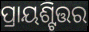
ପ୍ରାୟଶ୍ଟିତ୍ତର